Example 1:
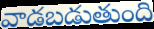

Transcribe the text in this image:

వాడబడుతుంది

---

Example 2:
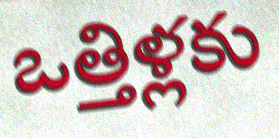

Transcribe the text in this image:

ఒత్తిళ్లకు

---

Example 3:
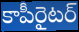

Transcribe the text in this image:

కాపీరైటర్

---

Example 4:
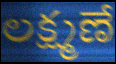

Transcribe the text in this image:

లక్ష్మణే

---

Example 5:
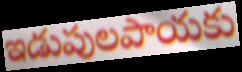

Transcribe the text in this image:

ఇడుపులపాయకు